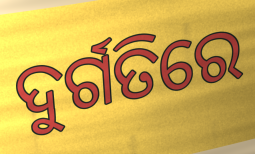
ଦୁର୍ଗତିରେ